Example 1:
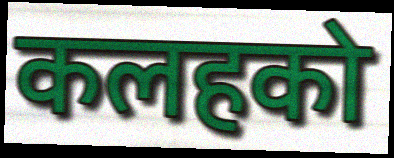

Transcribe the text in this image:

कलहको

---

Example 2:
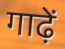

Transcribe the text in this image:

गाढ़ें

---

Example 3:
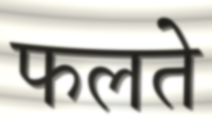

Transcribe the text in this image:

फलते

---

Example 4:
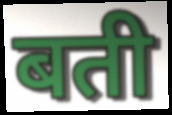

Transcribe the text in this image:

बती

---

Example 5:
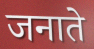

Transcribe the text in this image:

जनाते